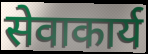
सेवाकार्य